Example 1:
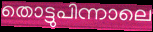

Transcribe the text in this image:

തൊട്ടുപിന്നാലെ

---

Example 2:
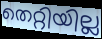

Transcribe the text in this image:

തെറ്റിയില്ല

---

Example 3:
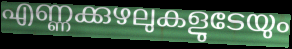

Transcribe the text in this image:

എണ്ണക്കുഴലുകളുടേയും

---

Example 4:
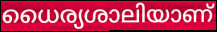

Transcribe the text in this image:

ധൈര്യശാലിയാണ്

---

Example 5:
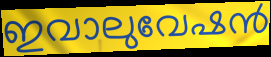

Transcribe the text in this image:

ഇവാലുവേഷൻ